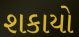
શકાયો